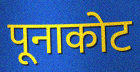
पूनाकोट